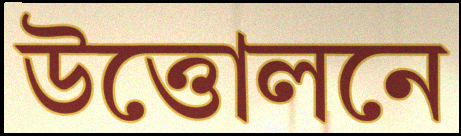
উত্তোলনে